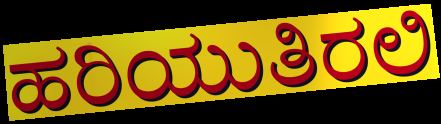
ಹರಿಯುತಿರಲಿ